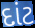
દાંટ